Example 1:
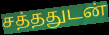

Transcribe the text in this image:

சத்ததுடன்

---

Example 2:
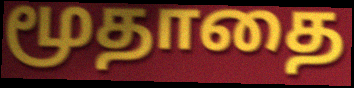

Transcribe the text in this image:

மூதாதை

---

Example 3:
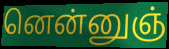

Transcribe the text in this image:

னென்னுஞ்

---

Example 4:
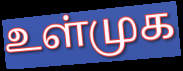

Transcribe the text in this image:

உள்முக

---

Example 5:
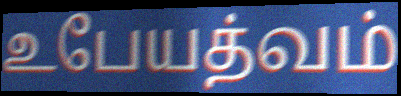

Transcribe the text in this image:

உபேயத்வம்